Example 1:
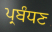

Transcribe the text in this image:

ਪ੍ਰਬੰਧਣ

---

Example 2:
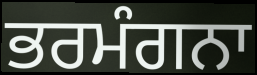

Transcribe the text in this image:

ਭਰਮੰਗਨਾ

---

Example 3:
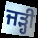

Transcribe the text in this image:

ਜੜ੍ਹੀ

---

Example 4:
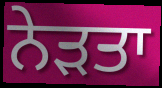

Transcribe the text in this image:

ਨੇੜਤਾ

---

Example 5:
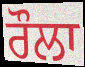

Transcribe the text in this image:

ਰੌਲਾ